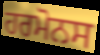
ਹਰਮੋਨਸ